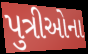
પુત્રીઓના